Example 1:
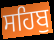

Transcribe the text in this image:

ਸਹਿਬੁ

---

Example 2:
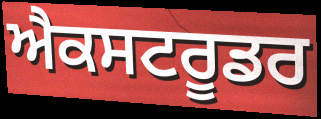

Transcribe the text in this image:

ਐਕਸਟਰੂਡਰ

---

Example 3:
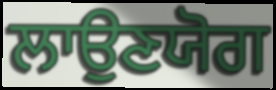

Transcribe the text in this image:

ਲਾਉਣਯੋਗ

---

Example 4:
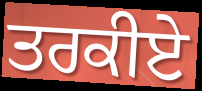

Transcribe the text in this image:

ਤਰਕੀਏ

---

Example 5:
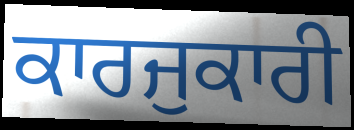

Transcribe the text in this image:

ਕਾਰਜੁਕਾਰੀ